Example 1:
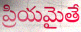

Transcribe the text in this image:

ప్రియమైతే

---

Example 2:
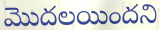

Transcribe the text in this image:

మొదలయిందని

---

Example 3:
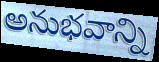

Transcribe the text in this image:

అనుభవాన్ని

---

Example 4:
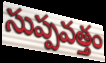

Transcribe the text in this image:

సుప్పవత్తం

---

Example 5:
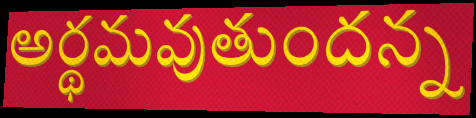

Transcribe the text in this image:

అర్థమవుతుందన్న